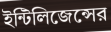
ইন্টিলিজেন্সের